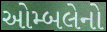
ઓમ્બલેનો